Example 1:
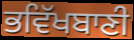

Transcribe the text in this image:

ਭਵਿੱਖਬਾਣੀ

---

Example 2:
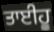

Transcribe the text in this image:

ਤਾਈਹੂ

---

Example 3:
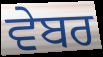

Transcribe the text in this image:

ਵੇਬਰ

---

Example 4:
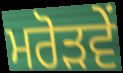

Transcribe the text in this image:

ਮਰੋੜਵੇਂ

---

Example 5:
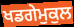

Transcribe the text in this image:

ਖਡਗੇਮੁਕੁਲ